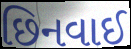
છિનવાઈ